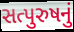
સત્પુરુષનું